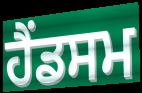
ਹੈਂਡਸਮ